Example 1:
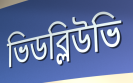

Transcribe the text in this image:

ভিডব্লিউভি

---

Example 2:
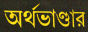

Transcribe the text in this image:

অর্থভাণ্ডার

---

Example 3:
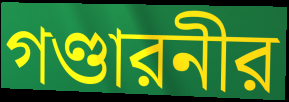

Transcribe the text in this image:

গণ্ডারনীর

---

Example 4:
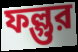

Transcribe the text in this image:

ফল্গুর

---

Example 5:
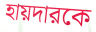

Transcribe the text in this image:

হায়দারকে